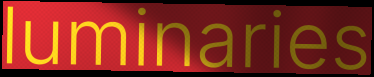
luminaries